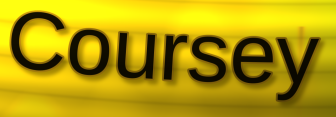
Coursey